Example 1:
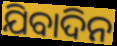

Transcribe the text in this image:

ଯିବାଦିନ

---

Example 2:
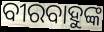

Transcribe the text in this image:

ବୀରବାହୁଙ୍କ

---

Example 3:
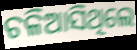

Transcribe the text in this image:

ଚଳିଆସିଥିଲେ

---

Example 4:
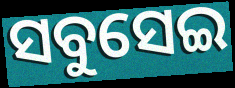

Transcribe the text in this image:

ସବୁସେଇ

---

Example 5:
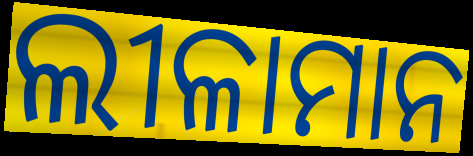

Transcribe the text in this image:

ଲୀଳାମାନ